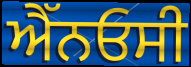
ਐੱਨਓਸੀ